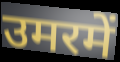
उमरमें